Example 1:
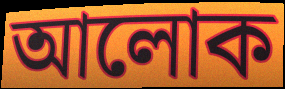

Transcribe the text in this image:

আলোক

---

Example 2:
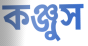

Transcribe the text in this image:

কঞ্জুস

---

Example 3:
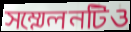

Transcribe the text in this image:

সম্মেলনটিও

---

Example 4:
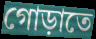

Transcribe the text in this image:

গোড়াতে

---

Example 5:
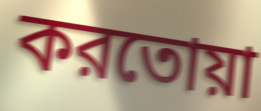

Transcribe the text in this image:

করতোয়া